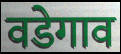
वडेगाव